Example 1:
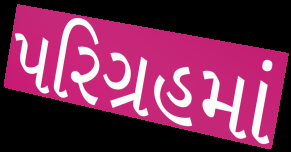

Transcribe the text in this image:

પરિગ્રહમાં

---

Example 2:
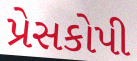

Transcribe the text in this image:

પ્રેસકોપી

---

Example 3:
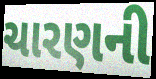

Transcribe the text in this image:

ચારણની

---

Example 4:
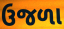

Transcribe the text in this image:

ઉજળા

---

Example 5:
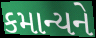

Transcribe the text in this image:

કમાન્યને